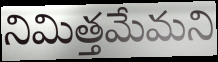
నిమిత్తమేమని